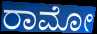
ರಾಮೋ